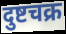
दुष्टचक्र